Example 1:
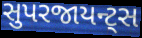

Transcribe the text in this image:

સુપરજાયન્ટ્સ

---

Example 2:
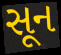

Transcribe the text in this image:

સૂન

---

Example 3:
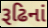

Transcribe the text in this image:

રૂઢિનાં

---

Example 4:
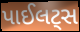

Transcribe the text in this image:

પાઈલટ્સ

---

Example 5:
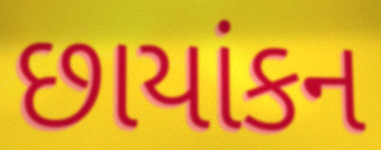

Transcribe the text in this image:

છાયાંકન